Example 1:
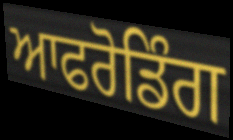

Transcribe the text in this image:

ਆਫਰੋਡਿੰਗ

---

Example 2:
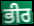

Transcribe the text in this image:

ਭੀਰ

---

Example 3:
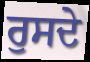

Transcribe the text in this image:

ਰੁਸਦੇ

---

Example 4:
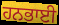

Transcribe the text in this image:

ਹਨਭਾਈ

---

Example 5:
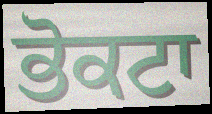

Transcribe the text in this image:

ਭੋਕਟਾ